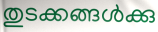
തുടക്കങ്ങൾക്കു